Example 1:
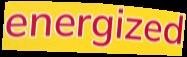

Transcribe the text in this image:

energized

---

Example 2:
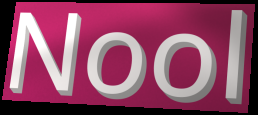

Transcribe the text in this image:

Nool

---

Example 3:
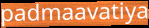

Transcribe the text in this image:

padmaavatiya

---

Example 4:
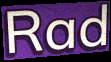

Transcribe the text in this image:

Rad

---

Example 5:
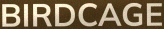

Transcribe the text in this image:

BIRDCAGE